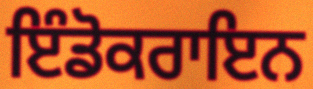
ਇੰਡੋਕਰਾਇਨ